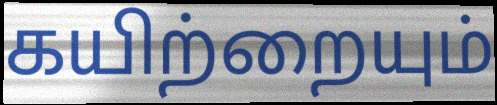
கயிற்றையும்